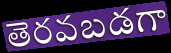
తెరవబడగా